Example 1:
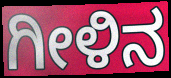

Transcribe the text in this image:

ಗೀಳಿನ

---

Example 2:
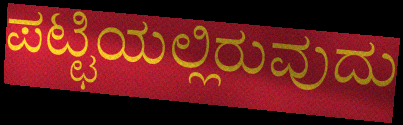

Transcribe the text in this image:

ಪಟ್ಟಿಯಲ್ಲಿರುವುದು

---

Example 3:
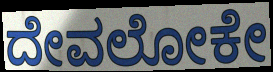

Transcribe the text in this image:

ದೇವಲೋಕೇ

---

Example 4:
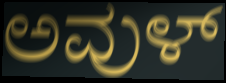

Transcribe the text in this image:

ಅವುಳ್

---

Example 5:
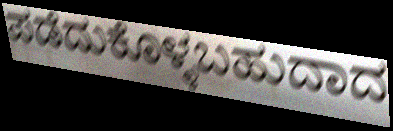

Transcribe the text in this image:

ಪಡೆದುಕೊಳ್ಳಬಹುದಾದ